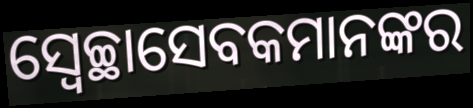
ସ୍ୱେଚ୍ଛାସେବକମାନଙ୍କର